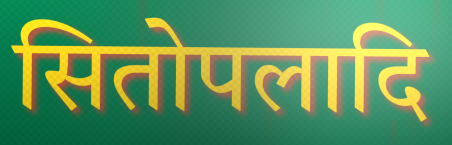
सितोपलादि